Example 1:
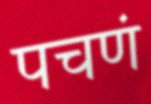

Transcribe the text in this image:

पचणं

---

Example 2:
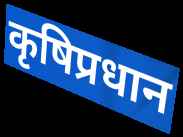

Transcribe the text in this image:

कृषिप्रधान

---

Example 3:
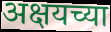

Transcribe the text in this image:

अक्षयच्या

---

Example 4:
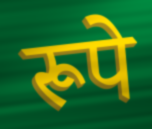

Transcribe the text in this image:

रूपे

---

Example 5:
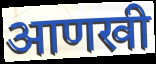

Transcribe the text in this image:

आणखी